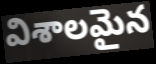
విశాలమైన